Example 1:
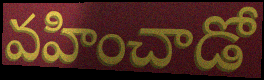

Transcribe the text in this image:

వహించాడో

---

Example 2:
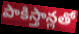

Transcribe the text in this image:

పాకిస్తాన్లతో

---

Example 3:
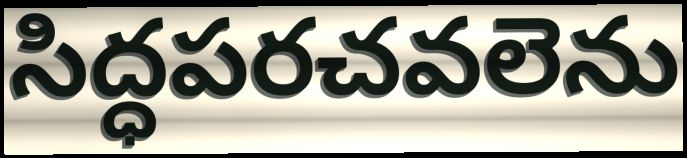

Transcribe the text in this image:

సిద్ధపరచవలెను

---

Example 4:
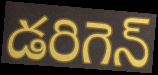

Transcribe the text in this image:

డరిగెన్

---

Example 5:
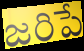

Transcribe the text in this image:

జరిపే